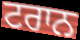
ਟਰਾਨ